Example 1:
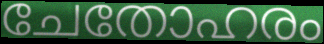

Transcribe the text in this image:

ചേതോഹരം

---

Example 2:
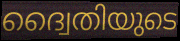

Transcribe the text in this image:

ദ്വൈതിയുടെ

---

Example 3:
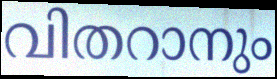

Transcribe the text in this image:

വിതറാനും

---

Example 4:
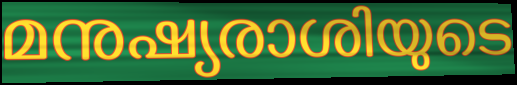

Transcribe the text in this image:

മനുഷ്യരാശിയുടെ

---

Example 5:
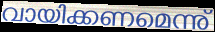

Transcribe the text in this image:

വായിക്കണമെന്നു്